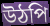
উঠপি